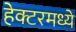
हेक्टरमध्ये